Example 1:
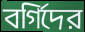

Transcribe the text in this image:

বর্গিদের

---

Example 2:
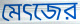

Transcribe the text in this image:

মেৎজের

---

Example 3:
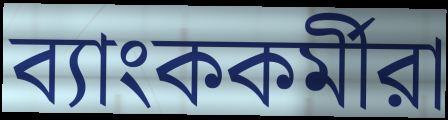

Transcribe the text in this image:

ব্যাংককর্মীরা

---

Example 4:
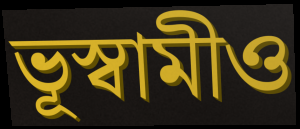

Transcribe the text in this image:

ভূস্বামীও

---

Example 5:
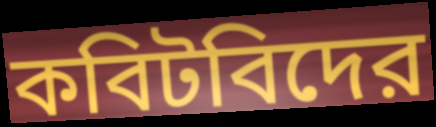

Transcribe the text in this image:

কবিটবিদের